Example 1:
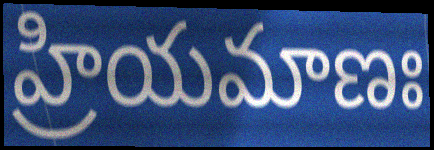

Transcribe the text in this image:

హ్రియమాణః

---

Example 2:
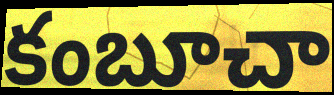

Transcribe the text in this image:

కంబూచా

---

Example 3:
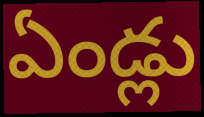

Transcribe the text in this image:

ఏండ్లు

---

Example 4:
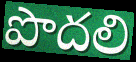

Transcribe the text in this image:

పొదలి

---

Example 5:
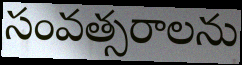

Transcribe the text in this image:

సంవత్సరాలను